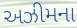
અઝીમના